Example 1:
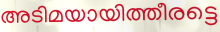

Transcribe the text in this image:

അടിമയായിത്തീരട്ടെ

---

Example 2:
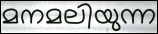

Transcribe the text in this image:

മനമലിയുന്ന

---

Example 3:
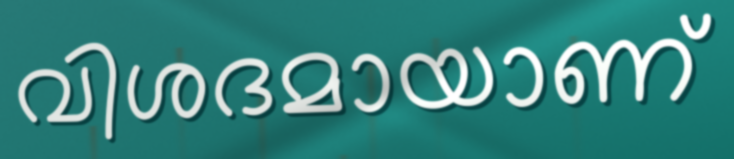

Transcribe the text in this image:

വിശദമായാണ്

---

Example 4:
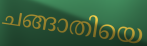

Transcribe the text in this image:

ചങ്ങാതിയെ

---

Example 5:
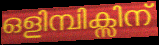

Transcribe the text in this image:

ഒളിമ്പിക്സിന്